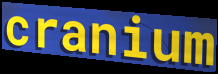
cranium